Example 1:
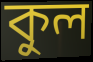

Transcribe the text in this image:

কুল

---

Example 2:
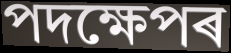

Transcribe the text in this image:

পদক্ষেপৰ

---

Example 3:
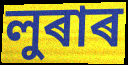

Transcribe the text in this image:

লুৰাৰ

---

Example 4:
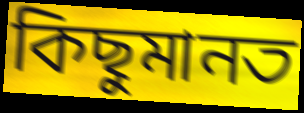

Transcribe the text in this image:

কিছুমানত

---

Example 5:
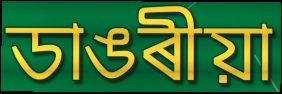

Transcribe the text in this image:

ডাঙৰীয়া